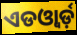
ଏଡଓ୍ବାର୍ଡ଼